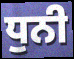
ਧੁਨੀ